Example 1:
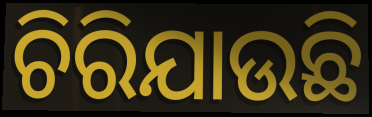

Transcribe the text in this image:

ଚିରିଯାଉଛି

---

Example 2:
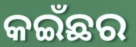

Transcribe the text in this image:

କଇଁଛର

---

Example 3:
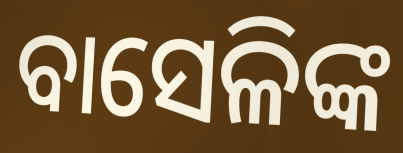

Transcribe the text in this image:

ବାସେଳିଙ୍କ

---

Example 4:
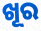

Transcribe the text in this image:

ଖୂର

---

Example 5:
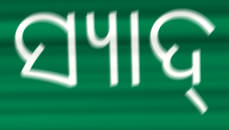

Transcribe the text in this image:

ସ୍ୟାଦ୍